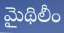
మైథిలీం